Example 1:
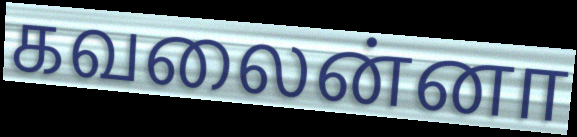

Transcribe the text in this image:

கவலைன்னா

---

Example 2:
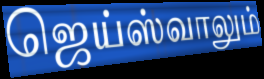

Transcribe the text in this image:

ஜெய்ஸ்வாலும்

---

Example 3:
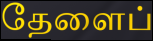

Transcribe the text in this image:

தேளைப்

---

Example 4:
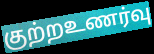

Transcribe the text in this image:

குற்றஉணர்வு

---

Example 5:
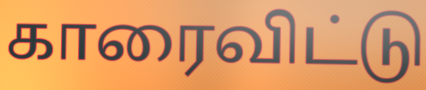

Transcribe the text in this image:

காரைவிட்டு